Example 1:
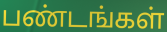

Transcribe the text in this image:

பண்டங்கள்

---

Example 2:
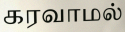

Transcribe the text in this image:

கரவாமல்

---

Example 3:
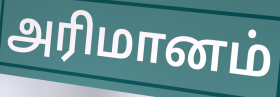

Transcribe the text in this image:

அரிமானம்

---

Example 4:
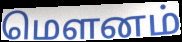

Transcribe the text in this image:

மெளனம்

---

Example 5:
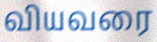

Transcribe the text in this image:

வியவரை